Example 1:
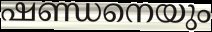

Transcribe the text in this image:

ഷണ്ഡനെയും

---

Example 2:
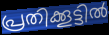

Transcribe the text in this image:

പ്രതിക്കൂട്ടിൽ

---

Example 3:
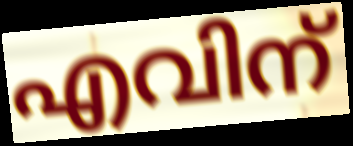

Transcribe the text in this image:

എവിന്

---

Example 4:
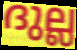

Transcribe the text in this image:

ദുല്ല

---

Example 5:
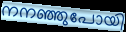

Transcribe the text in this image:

നനഞ്ഞുപോയി